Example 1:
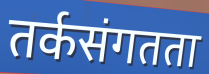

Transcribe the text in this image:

तर्कसंगतता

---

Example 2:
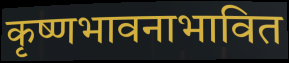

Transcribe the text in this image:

कृष्णभावनाभावित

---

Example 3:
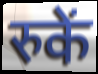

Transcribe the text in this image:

रुकें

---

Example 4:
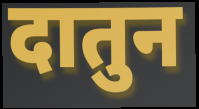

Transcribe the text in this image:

दातुन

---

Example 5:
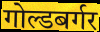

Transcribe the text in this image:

गोल्डबर्गर